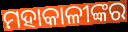
ମହାକାଳୀଙ୍କର